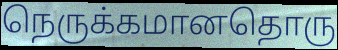
நெருக்கமானதொரு